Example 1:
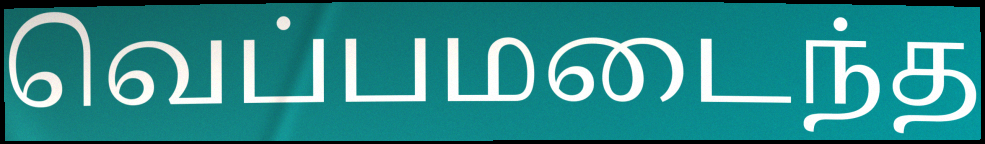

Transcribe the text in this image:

வெப்பமடைந்த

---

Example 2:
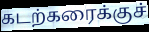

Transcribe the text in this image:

கடற்கரைக்குச்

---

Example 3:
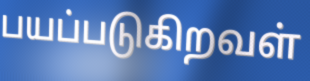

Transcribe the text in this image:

பயப்படுகிறவள்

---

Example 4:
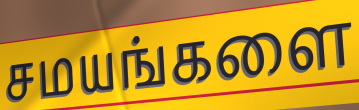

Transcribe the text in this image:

சமயங்களை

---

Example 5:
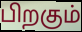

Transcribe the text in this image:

பிறகும்